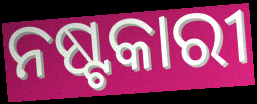
ନଷ୍ଟକାରୀ